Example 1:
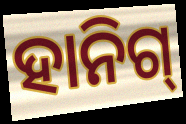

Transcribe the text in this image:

ହାନିଗ୍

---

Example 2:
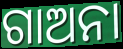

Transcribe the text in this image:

ଗାଅନା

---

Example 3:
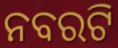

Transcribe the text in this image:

ନବରଟି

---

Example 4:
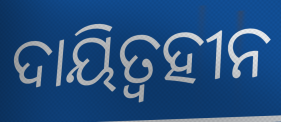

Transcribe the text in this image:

ଦାୟିତ୍ଵହୀନ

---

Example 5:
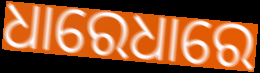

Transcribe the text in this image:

ଧାରେଧାରେ